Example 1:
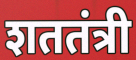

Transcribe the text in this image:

शततंत्री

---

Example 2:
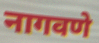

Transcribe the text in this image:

नागवणे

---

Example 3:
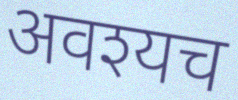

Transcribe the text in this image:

अवश्यच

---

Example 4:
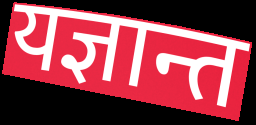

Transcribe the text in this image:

यज्ञान्त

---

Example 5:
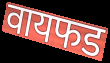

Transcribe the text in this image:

वायफड